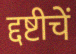
द्दष्टीचें